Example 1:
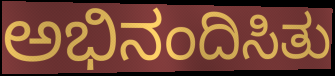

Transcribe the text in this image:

ಅಭಿನಂದಿಸಿತು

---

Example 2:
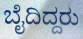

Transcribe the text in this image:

ಬೈದಿದ್ದರು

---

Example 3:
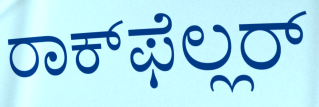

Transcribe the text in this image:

ರಾಕ್‌ಫೆಲ್ಲರ್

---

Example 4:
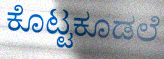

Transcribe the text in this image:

ಕೊಟ್ಟಕೂಡಲೆ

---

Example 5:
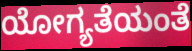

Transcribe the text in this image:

ಯೋಗ್ಯತೆಯಂತೆ